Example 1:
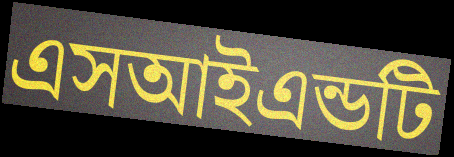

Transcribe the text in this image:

এসআইএন্ডটি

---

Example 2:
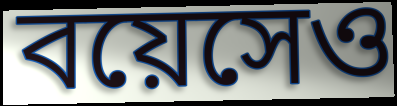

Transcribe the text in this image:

বয়েসেও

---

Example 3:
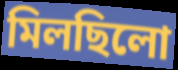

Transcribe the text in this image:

মিলছিলো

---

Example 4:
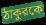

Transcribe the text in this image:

ঠাকুরকে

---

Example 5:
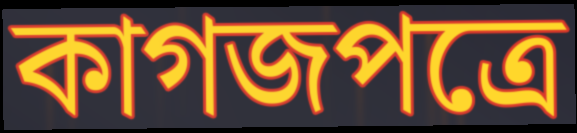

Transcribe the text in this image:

কাগজপত্রে